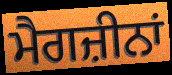
ਮੈਗਜ਼ੀਨਾਂ